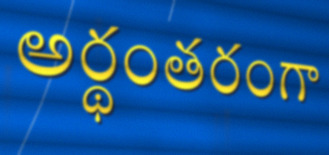
అర్థంతరంగా